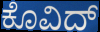
ಕೊವಿದ್